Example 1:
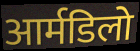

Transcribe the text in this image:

आर्मडिलो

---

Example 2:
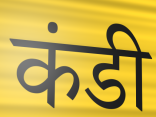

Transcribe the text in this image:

कंडी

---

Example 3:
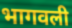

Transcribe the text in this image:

भागवली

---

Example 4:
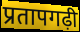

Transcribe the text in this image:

प्रतापगढ़ी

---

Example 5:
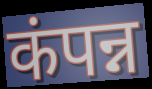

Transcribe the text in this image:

कंपन्न